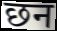
छन